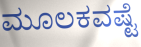
ಮೂಲಕವಷ್ಟೆ